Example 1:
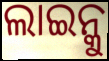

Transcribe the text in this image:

ଲାଇନ୍କୁ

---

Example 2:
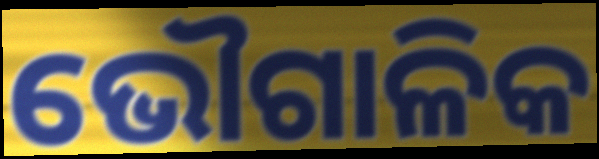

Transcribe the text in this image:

ଭୌଗାଳିକ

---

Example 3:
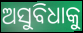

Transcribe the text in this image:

ଅସୁବିଧାକୁ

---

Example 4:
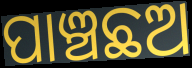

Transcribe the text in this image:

ପାଞ୍ଚଛଅ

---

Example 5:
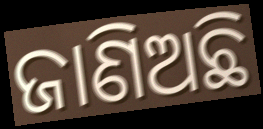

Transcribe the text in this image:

ଜାଣିଅଛି